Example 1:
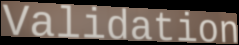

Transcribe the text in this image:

Validation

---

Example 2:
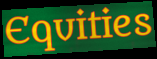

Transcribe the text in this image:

Equities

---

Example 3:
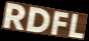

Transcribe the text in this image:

RDFL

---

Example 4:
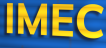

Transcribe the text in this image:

IMEC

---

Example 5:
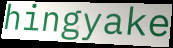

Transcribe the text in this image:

hingyake